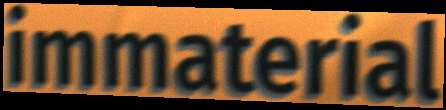
immaterial